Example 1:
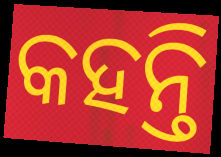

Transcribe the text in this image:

କହନ୍ତି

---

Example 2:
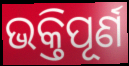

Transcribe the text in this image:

ଭକ୍ତିପୂର୍ଣ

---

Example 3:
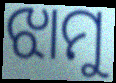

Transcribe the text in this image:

ଝାମୁ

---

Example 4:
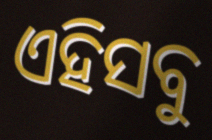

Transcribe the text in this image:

ଏହିସବୁ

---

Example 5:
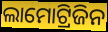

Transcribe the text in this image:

ଲାମୋଟ୍ରିଜିନ